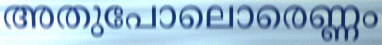
അതുപോലൊരെണ്ണം